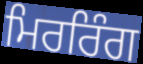
ਮਿਰਰਿੰਗ